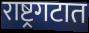
राष्ट्रगटात